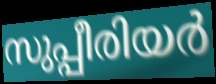
സുപ്പീരിയർ